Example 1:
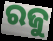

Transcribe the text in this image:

ରଜୁ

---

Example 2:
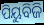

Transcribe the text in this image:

ପିୟୁବିଜି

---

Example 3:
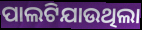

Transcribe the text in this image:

ପାଲଟିଯାଉଥିଲା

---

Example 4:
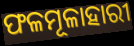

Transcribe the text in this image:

ଫଳମୂଳାହାରୀ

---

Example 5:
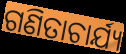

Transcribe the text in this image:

ଗଣିତାଚାର୍ଯ୍ୟ